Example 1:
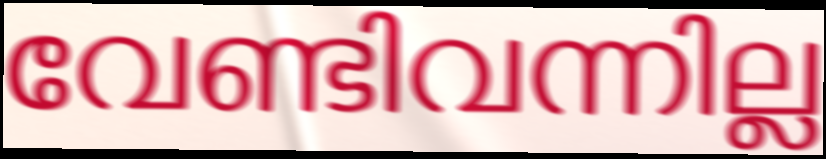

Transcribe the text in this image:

വേണ്ടിവന്നില്ല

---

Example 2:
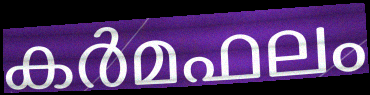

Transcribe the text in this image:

കർമഫലം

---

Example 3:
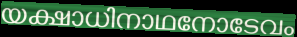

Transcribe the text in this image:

യക്ഷാധിനാഥനോടേവം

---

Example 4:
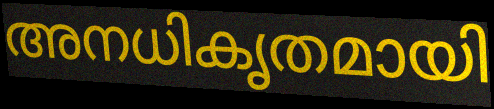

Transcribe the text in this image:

അനധികൃതമായി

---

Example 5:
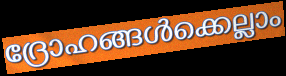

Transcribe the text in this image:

ദ്രോഹങ്ങൾക്കെല്ലാം